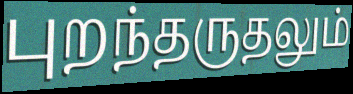
புறந்தருதலும்